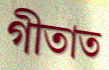
গীতাত